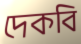
দেকবি